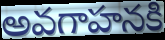
అవగాహనకి